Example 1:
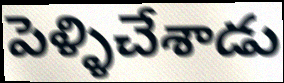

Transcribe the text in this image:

పెళ్ళిచేశాడు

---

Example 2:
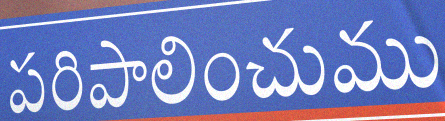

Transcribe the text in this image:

పరిపాలించుము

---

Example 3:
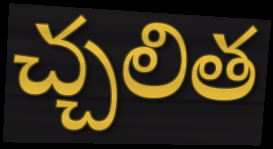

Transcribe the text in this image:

చ్చలిత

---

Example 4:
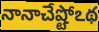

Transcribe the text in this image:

నానాచేష్టోఽథ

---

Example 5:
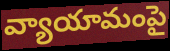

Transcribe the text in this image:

వ్యాయామంపై